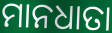
ମାନଧାତା